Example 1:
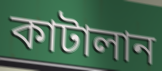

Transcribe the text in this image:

কাটালান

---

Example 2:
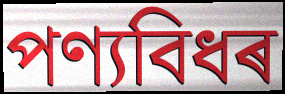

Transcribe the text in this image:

পণ্যবিধৰ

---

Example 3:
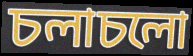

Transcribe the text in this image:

চলাচলো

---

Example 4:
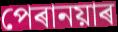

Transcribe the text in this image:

পেৰানয়াৰ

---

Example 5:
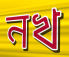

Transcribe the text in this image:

নখ